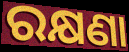
ରକ୍ଷଣା